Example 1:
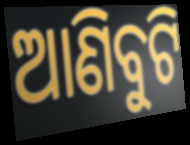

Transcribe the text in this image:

ଆଣିବୁଟି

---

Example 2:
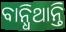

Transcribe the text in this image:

ବାନ୍ଧିଥାନ୍ତି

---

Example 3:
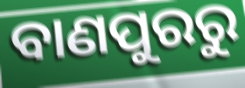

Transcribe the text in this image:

ବାଣପୁରରୁ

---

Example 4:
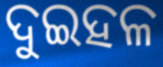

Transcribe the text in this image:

ଦୁଇହଳ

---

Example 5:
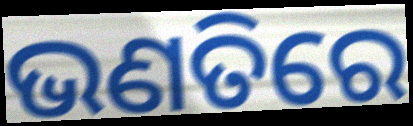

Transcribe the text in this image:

ଭଣତିରେ